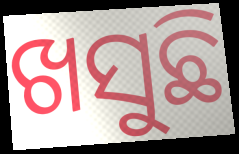
ଖସୁଛି